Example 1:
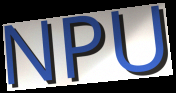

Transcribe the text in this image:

NPU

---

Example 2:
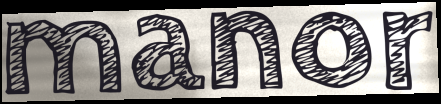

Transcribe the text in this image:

manor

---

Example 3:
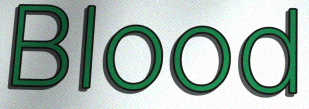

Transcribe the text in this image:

Blood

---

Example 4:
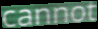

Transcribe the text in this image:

cannot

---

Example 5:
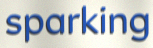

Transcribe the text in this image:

sparking